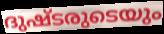
ദുഷ്ടരുടെയും